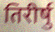
तिरीर्षु